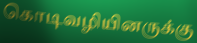
கொடிவழியினருக்கு